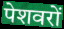
पेशवरों